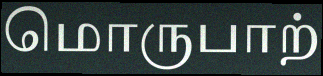
மொருபாற்